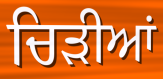
ਚਿੜੀਆਂ